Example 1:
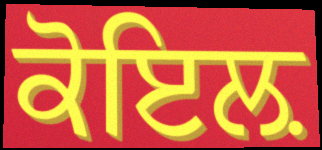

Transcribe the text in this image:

ਕੋਇਲ਼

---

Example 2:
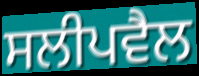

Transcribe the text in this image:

ਸਲੀਪਵੈਲ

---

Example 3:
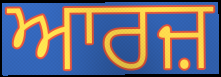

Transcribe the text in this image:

ਆਰਜ਼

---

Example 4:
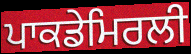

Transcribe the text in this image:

ਪਾਕਡੇਮਿਰਲੀ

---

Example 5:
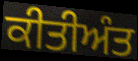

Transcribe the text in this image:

ਕੀਤੀਅੰਤ